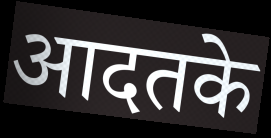
आदतके